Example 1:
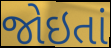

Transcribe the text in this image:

જોઇતાં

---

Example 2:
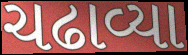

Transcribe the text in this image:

ચઢાવ્યા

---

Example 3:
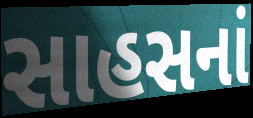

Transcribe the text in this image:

સાહસનાં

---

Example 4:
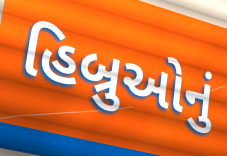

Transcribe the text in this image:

હિબ્રુઓનું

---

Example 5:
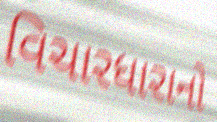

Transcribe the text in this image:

વિચારધારાનો